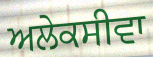
ਅਲੇਕਸੀਵਾ